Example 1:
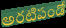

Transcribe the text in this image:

అరటిపండో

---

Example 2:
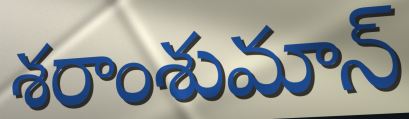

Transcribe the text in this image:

శరాంశుమాన్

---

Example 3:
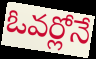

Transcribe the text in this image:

ఓవర్లోనే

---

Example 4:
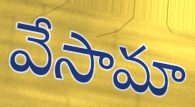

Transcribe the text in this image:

వేసామా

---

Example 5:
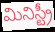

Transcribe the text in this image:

మినిస్ట్రీ